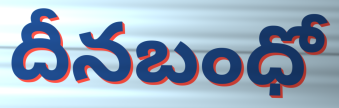
దీనబంధో